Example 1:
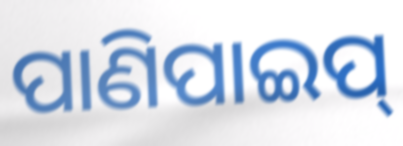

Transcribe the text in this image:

ପାଣିପାଇପ୍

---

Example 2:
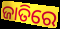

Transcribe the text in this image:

ଜାତିରେ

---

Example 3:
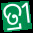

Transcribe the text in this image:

ତ୍ରୀ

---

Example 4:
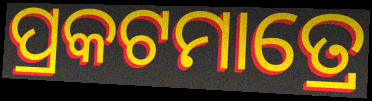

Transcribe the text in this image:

ପ୍ରକଟମାତ୍ରେ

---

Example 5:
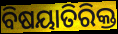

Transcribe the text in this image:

ବିଷୟାତିରିକ୍ତ